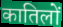
कातिलों